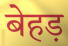
बेहड़